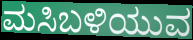
ಮಸಿಬಳಿಯುವ